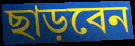
ছাড়বেন